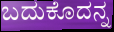
ಬದುಕೊದನ್ನ